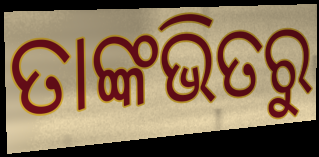
ତାଙ୍କଭିତରୁ